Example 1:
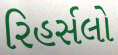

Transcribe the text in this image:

રિહર્સલો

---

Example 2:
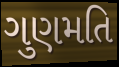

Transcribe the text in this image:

ગુણમતિ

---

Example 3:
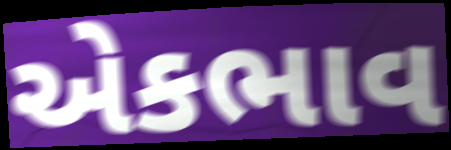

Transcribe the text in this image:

એકભાવ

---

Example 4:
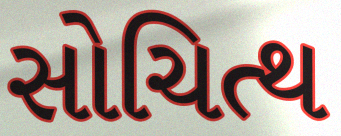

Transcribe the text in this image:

સોચિત્થ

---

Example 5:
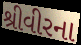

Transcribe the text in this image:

શ્રીવીરના